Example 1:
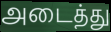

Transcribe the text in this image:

அடைத்து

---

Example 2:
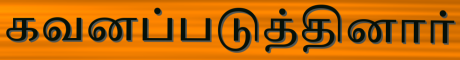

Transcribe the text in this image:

கவனப்படுத்தினார்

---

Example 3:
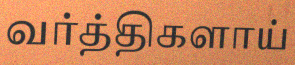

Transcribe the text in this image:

வர்த்திகளாய்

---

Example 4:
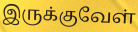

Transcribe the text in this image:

இருக்குவேள்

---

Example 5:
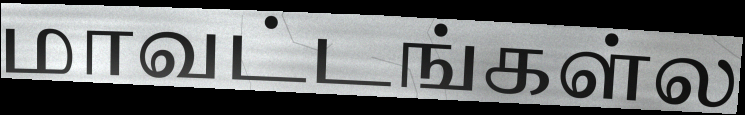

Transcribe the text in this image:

மாவட்டங்கள்ல